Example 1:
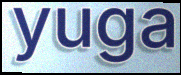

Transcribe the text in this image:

yuga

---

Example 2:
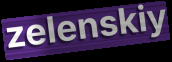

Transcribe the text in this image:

zelenskiy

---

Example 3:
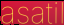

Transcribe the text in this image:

asatil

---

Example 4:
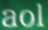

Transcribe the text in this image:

aol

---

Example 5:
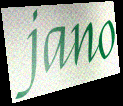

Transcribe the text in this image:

jano